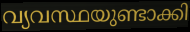
വ്യവസ്ഥയുണ്ടാക്കി